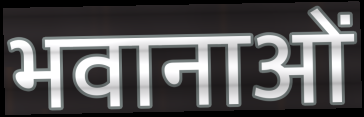
भवानाओं